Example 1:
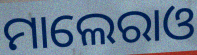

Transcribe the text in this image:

ମାଲେରାଓ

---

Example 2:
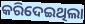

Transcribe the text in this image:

କରିଦେଇଥିଲା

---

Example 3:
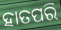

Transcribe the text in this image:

ହାତପରି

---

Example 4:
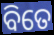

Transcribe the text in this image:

ବିତେ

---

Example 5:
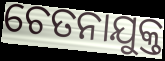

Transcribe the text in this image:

ଚେତନାଯୁକ୍ତ